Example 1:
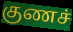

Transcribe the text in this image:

குணச்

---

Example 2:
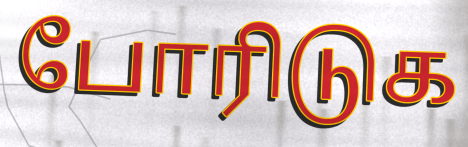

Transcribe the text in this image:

போரிடுக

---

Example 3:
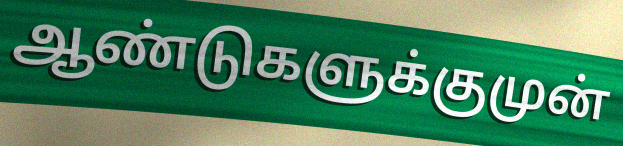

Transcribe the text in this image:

ஆண்டுகளுக்குமுன்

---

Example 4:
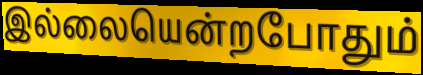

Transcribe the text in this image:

இல்லையென்றபோதும்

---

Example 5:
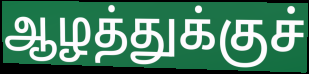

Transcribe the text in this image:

ஆழத்துக்குச்